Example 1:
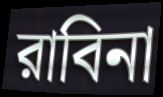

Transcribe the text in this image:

রাবিনা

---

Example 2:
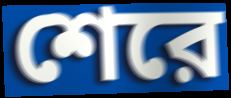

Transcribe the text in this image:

শেরে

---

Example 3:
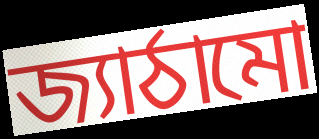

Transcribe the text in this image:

জ্যাঠামো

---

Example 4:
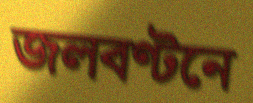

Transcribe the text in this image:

জলবণ্টনে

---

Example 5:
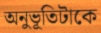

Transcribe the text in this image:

অনুভূতিটাকে